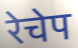
रेचेप